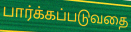
பார்க்கப்படுவதை